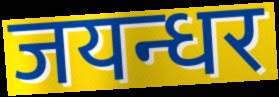
जयन्धर